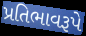
પ્રતિભાવરૂપે